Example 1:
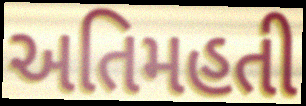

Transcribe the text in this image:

અતિમહતી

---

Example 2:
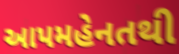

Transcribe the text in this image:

આપમહેનતથી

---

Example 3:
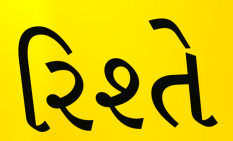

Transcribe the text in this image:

રિશ્તે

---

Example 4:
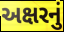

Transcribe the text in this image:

અક્ષરનું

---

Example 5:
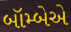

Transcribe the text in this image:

બૉમ્બેએ